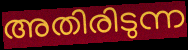
അതിരിടുന്ന